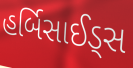
હર્બિસાઈડ્સ